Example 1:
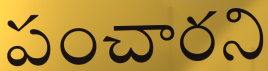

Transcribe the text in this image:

పంచారని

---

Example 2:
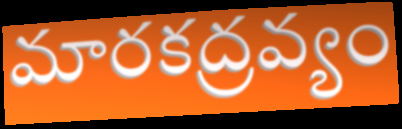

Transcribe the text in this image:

మారకద్రవ్యం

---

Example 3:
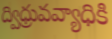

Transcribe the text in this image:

ద్విధ్రువవ్యాధికి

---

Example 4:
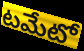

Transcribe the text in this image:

టమేటో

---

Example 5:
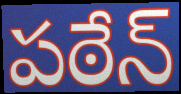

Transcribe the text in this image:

పఠేన్